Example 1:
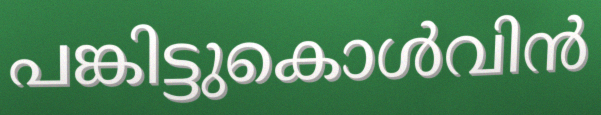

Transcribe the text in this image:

പങ്കിട്ടുകൊൾവിൻ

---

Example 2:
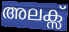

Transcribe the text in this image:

അലക്സ്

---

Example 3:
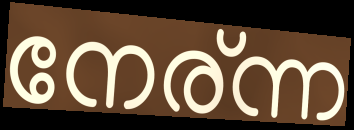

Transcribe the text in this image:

നേര്ന്ന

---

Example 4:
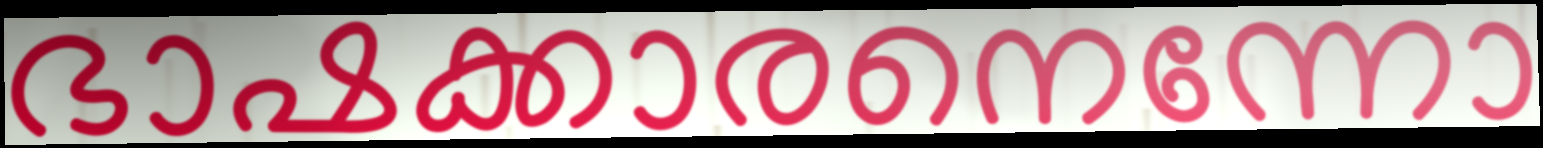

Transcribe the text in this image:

ഭാഷക്കാരനെന്നോ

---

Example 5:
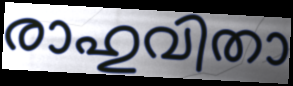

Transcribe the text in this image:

രാഹുവിതാ